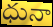
ధునా